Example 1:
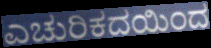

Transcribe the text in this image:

ಎಚುರಿಕದಯಿಂದ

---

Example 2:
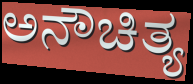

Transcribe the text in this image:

ಅನೌಚಿತ್ಯ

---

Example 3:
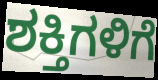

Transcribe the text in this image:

ಶಕ್ತಿಗಳಿಗೆ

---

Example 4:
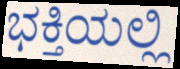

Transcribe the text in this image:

ಭಕ್ತಿಯಲ್ಲಿ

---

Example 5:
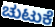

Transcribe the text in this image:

ಚುಟುಕೆ